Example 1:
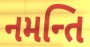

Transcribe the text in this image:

નમન્તિ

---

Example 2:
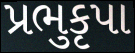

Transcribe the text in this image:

પ્રભુકૃપા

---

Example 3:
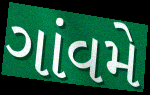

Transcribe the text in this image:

ગાંવમે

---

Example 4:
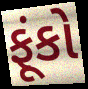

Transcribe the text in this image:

ફૂંકો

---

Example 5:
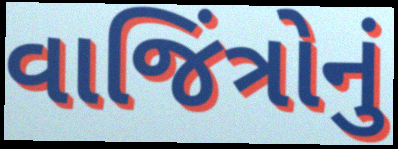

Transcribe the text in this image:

વાજિંત્રોનું